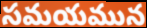
సమయమున